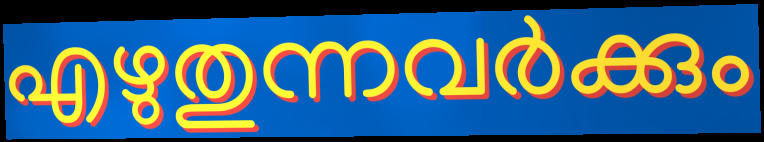
എഴുതുന്നവർക്കും